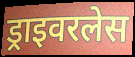
ड्राइवरलेस